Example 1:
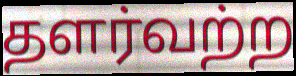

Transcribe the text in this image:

தளர்வற்ற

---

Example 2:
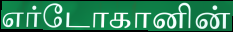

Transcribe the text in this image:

எர்டோகானின்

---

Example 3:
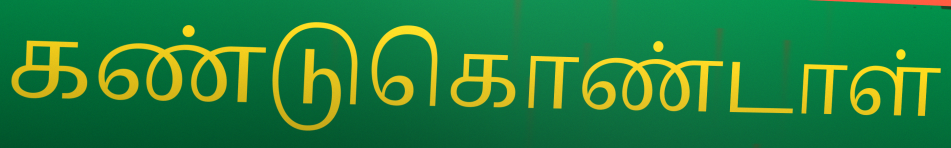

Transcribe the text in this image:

கண்டுகொண்டாள்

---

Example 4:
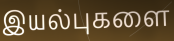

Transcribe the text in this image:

இயல்புகளை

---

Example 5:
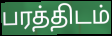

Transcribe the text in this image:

பரத்திடம்